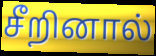
சீறினால்